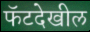
फॅटदेखील